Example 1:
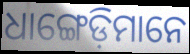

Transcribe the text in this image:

ଧାଙ୍ଗେଡ଼ିମାନେ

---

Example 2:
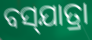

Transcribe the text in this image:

ବସ୍‌ଯାତ୍ରା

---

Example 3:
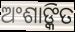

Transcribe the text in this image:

ଅଂଶାଙ୍କିତ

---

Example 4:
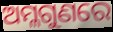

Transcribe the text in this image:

ଅମ୍ଳଗୁଣରେ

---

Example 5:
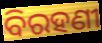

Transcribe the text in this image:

ବିରହଣୀ